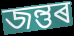
জন্তুৰ